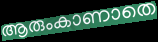
ആരുംകാണാതെ